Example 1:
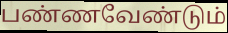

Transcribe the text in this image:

பண்ணவேண்டும்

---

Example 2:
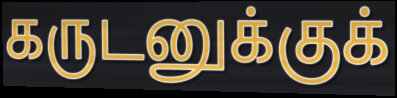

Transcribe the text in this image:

கருடனுக்குக்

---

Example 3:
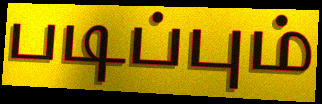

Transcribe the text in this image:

படிப்பும்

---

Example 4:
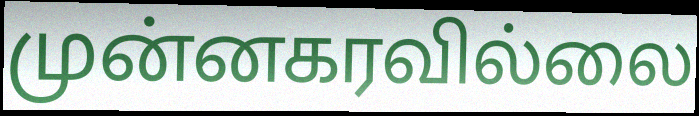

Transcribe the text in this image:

முன்னகரவில்லை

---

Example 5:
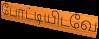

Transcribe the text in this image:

போட்டியிடவே